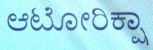
ಆಟೋರಿಕ್ಷಾ